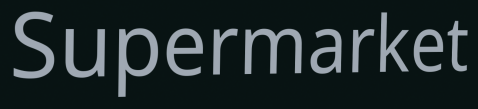
Supermarket